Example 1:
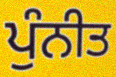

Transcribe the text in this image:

ਪੁੰਨੀਤ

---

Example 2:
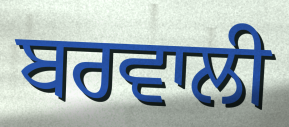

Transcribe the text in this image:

ਬਰਵਾਲੀ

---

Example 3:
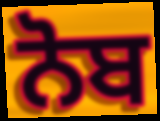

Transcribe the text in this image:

ਨੋਬ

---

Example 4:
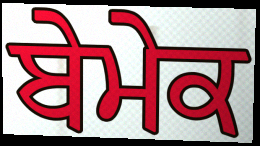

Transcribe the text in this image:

ਬੇਮੇਕ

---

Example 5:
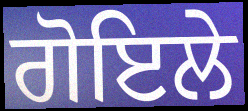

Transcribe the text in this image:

ਗੋਇਲੇ